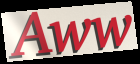
Aww